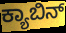
ಕ್ಯಾಬಿನ್